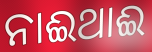
ନାଈଥାଈ